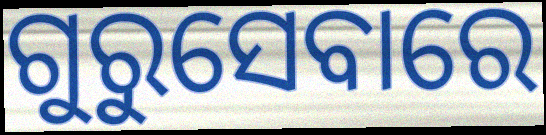
ଗୁରୁସେବାରେ